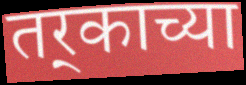
तर्काच्या